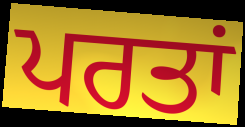
ਪਰਤਾਂ